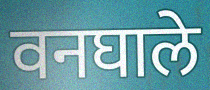
वनघाले